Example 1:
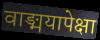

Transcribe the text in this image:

वाङ्मयापेक्षा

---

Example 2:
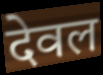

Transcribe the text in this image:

देवल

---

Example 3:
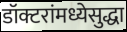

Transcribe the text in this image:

डॉक्टरांमध्येसुद्धा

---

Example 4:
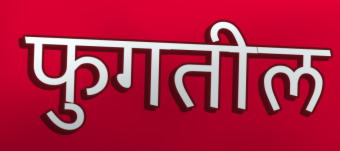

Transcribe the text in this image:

फुगतील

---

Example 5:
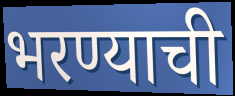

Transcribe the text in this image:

भरण्याची